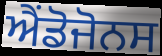
ਐਂਡੋਜੋਨਸ